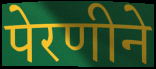
पेरणीने